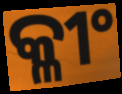
କ୍ଳୀଂ